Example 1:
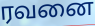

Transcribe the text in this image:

ரவனை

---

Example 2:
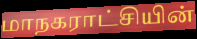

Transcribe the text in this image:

மாநகராட்சியின்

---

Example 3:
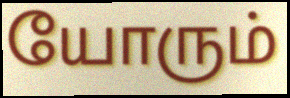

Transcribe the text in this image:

யோரும்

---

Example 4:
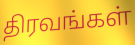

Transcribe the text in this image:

திரவங்கள்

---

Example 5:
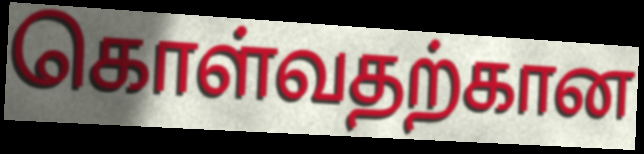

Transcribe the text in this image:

கொள்வதற்கான